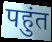
पहुंत